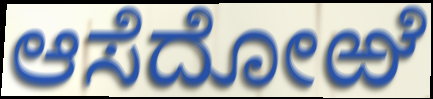
ಆಸೆದೋಱೆ